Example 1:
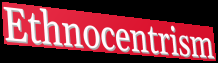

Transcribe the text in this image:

Ethnocentrism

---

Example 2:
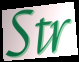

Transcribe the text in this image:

Str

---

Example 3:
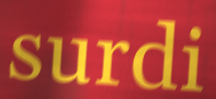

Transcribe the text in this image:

surdi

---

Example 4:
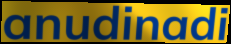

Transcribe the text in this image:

anudinadi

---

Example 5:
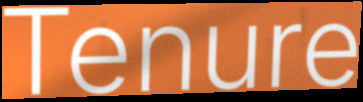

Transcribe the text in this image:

Tenure